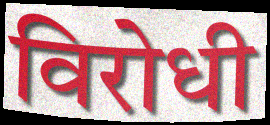
विरोधी